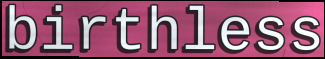
birthless